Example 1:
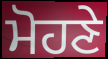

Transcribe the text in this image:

ਮੋਹਣੇ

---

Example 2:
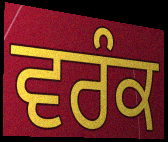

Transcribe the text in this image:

ਵਰੰਕ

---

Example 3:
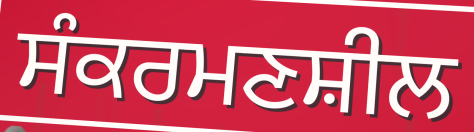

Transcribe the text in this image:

ਸੰਕਰਮਣਸ਼ੀਲ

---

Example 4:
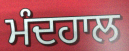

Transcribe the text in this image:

ਮੰਦਹਾਲ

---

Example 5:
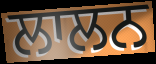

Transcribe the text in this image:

ਲਾਲਨ